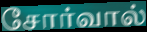
சோர்வால்